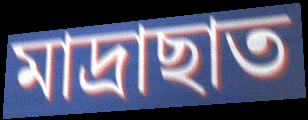
মাদ্ৰাছাত